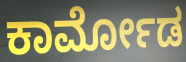
ಕಾರ್ಮೋಡ